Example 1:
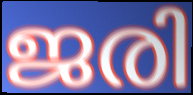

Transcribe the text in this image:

ജരി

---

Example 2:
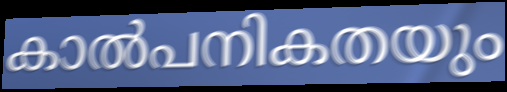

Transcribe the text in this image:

കാൽപനികതയും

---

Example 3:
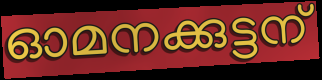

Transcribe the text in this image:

ഓമനക്കുട്ടന്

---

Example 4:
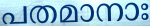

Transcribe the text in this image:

പതമാനാഃ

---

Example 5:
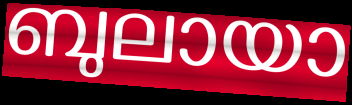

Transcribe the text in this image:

ബുലായാ